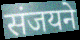
संजयने